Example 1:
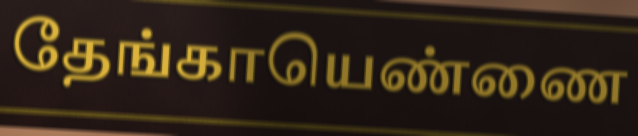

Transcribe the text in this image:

தேங்காயெண்ணை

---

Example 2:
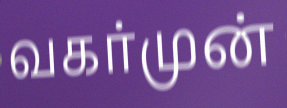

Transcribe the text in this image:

வகர்முன்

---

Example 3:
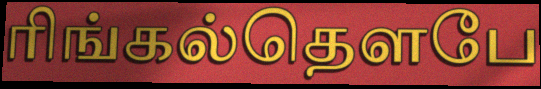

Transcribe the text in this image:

ரிங்கல்தௌபே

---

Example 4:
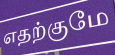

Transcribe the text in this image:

எதற்குமே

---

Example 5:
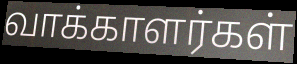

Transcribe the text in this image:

வாக்காளர்கள்